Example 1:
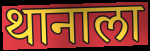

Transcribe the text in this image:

थानाला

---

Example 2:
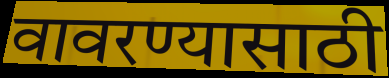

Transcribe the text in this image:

वावरण्यासाठी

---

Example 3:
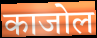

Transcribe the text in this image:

काजोल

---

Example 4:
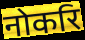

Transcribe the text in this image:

नोकरि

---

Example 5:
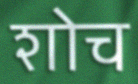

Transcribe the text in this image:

शोच